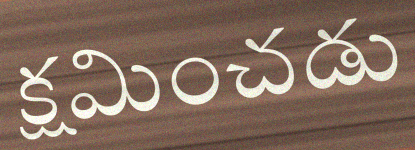
క్షమించడు